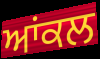
ਆਂਕਲ